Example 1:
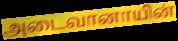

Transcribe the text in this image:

அடைவானாயின்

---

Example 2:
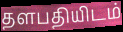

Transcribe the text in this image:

தளபதியிடம்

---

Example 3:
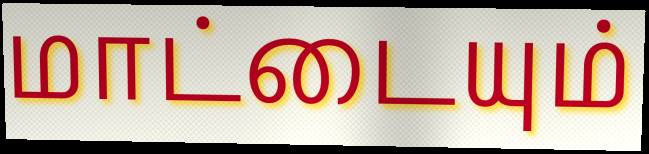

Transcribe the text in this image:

மாட்டையும்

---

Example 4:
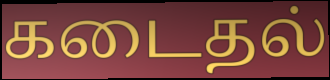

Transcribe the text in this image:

கடைதல்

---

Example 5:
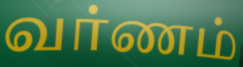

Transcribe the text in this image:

வர்ணம்